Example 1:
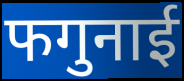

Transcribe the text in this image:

फगुनाई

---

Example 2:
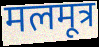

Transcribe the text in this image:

मलमूत्र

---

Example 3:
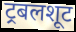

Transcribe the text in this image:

ट्रबलशूट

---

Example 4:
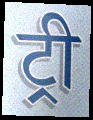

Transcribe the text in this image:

ट्री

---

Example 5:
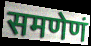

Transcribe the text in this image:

समणेणं